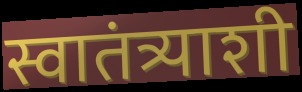
स्वातंत्र्याशी